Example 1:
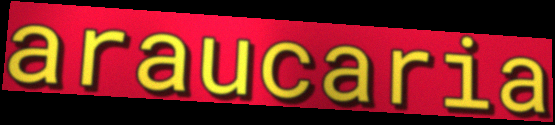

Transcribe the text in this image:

araucaria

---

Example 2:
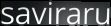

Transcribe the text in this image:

saviraru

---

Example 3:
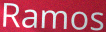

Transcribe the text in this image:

Ramos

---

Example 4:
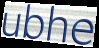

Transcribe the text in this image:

ubhe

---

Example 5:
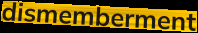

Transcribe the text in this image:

dismemberment